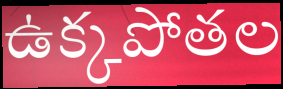
ఉక్కపోతల